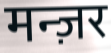
मन्ज़र